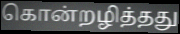
கொன்றழித்தது